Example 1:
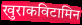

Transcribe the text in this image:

खुराकविटामिन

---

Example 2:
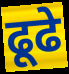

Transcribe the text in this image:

ढूढे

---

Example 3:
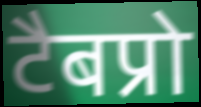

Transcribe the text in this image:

टैबप्रो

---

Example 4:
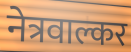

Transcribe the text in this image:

नेत्रवाल्कर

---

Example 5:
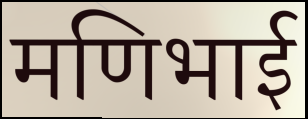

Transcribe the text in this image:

मणिभाई